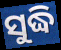
ସୁଦ୍ଧି